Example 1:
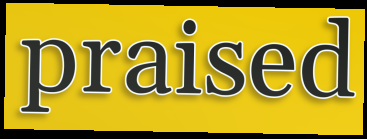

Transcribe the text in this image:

praised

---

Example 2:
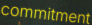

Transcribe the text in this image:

commitment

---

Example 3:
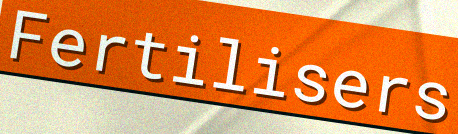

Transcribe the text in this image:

Fertilisers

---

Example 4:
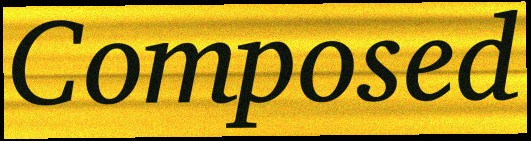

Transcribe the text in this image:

Composed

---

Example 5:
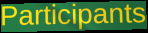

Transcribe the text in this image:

Participants